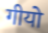
गीयो